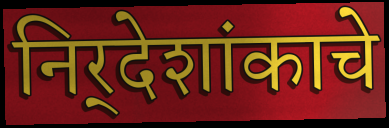
निर्देशांकाचे